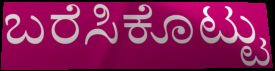
ಬರೆಸಿಕೊಟ್ಟು